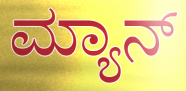
ಮ್ಯಾನ್